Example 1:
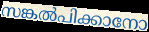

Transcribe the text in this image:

സങ്കൽപിക്കാനോ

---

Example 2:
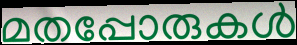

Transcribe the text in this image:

മതപ്പോരുകൾ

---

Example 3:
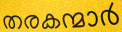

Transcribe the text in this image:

തരകന്മാർ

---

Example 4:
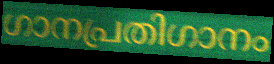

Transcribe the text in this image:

ഗാനപ്രതിഗാനം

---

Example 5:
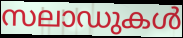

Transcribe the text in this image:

സലാഡുകൾ